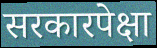
सरकारपेक्षा